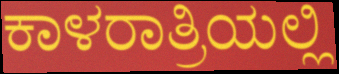
ಕಾಳರಾತ್ರಿಯಲ್ಲಿ